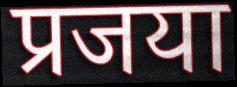
प्रजया